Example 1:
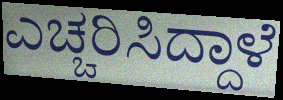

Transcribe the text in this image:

ಎಚ್ಚರಿಸಿದ್ದಾಳೆ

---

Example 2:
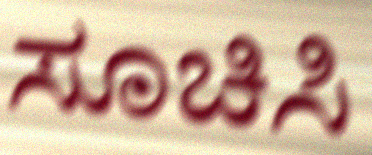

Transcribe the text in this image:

ಸೂಚಿಸಿ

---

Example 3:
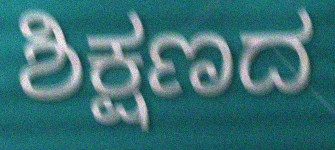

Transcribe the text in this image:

ಶಿಕ್ಷಣದ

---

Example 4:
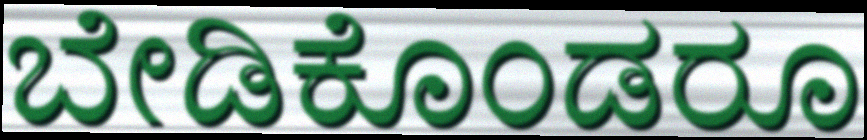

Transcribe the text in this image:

ಬೇಡಿಕೊಂಡರೂ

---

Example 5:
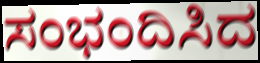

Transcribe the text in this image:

ಸಂಭಂದಿಸಿದ